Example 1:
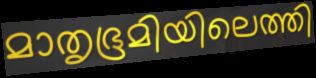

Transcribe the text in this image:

മാതൃഭൂമിയിലെത്തി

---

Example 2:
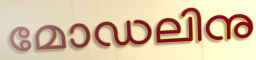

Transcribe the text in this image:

മോഡലിനു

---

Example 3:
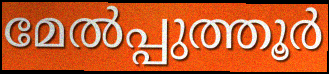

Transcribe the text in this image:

മേൽപ്പുത്തൂർ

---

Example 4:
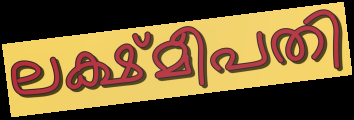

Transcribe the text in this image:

ലക്ഷ്മീപതി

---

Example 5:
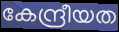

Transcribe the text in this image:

കേന്ദ്രീയത